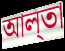
আল্‌তা